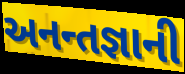
અનન્તજ્ઞાની